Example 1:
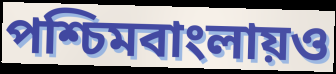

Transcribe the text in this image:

পশ্চিমবাংলায়ও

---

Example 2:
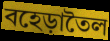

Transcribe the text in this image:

বহেড়াতৈল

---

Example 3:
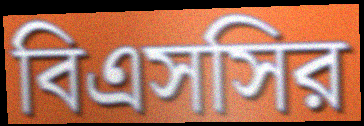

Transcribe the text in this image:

বিএসসির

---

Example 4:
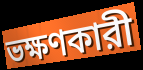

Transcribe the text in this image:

ভক্ষণকারী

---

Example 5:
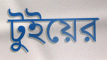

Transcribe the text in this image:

টুইয়ের